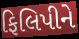
ફિલિપીને